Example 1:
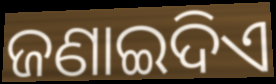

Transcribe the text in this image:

ଜଣାଇଦିଏ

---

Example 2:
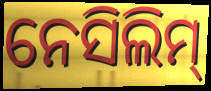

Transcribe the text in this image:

ନେସିଲିମ୍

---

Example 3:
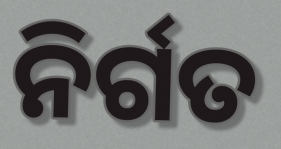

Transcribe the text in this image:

ନିର୍ଗତ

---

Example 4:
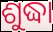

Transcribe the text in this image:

ଶୁଦ୍ଧା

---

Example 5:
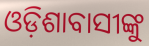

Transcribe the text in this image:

ଓଡ଼ିଶାବାସୀଙ୍କୁ